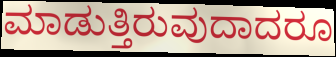
ಮಾಡುತ್ತಿರುವುದಾದರೂ